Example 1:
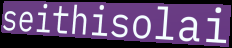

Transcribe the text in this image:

seithisolai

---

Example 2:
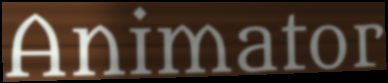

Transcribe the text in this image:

Animator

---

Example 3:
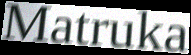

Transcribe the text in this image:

Matruka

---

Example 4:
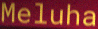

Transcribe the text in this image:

Meluha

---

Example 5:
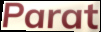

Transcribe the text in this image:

Parat